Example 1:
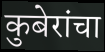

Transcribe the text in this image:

कुबेरांचा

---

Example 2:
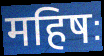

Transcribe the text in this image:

महिषः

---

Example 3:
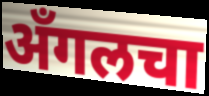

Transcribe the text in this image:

अँगलचा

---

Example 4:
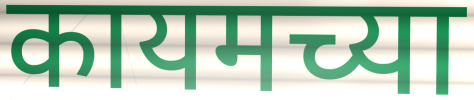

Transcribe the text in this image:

कायमच्या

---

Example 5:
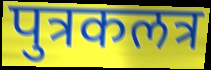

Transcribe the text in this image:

पुत्रकलत्र